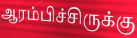
ஆரம்பிச்சிருக்கு